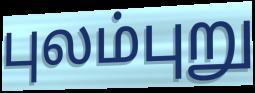
புலம்புறு